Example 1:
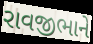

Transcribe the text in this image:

રાવજીભાને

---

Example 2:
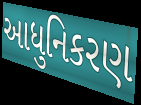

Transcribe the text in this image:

આધુનિકરણ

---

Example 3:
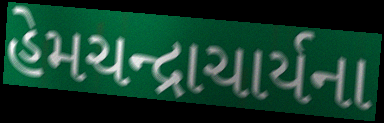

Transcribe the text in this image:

હેમચન્દ્રાચાર્યના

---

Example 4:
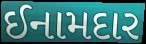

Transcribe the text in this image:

ઈનામદાર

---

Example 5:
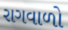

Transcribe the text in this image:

રાગવાળો